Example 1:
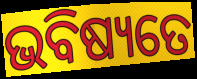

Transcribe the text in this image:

ଭବିଷ୍ୟତେ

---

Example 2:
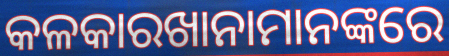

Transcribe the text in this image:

କଳକାରଖାନାମାନଙ୍କରେ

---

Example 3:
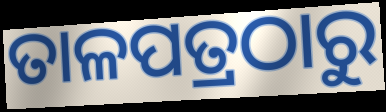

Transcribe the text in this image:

ତାଳପତ୍ରଠାରୁ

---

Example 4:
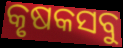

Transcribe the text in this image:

କୃଷକସବୁ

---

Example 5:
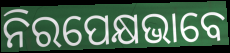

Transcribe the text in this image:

ନିରପେକ୍ଷଭାବେ